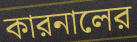
কারনালের